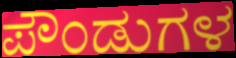
ಪೌಂಡುಗಳ